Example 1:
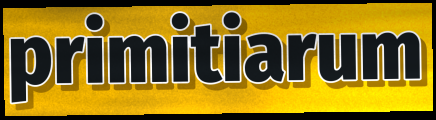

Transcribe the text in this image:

primitiarum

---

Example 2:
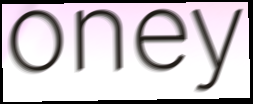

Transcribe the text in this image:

oney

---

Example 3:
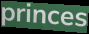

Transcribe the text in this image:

princes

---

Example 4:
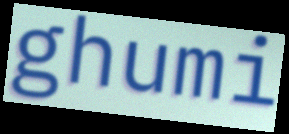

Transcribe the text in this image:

ghumi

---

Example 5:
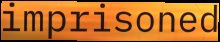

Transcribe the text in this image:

imprisoned